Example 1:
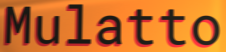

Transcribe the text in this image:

Mulatto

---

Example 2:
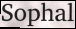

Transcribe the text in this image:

Sophal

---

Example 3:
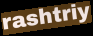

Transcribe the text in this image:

rashtriy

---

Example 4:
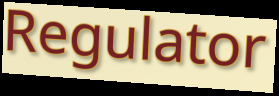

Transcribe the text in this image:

Regulator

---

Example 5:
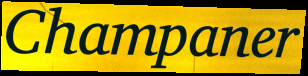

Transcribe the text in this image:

Champaner